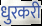
धुरकरी